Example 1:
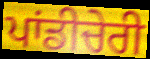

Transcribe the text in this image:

ਪਾਂਡੀਚੇਰੀ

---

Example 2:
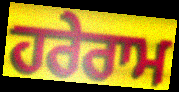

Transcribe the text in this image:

ਹਰੇਰਾਮ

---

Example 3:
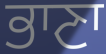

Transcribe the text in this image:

ਭਾਣਾ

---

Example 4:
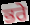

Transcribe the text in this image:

ਭਰੇ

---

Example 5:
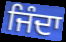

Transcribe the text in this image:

ਜਿੰਦਾ